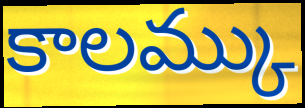
కాలమ్కు